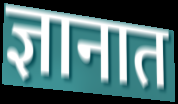
ज्ञानात